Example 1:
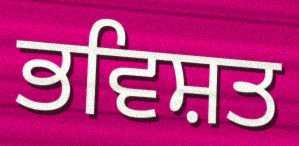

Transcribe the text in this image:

ਭਵਿਸ਼ਤ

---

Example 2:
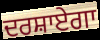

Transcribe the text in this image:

ਦਰਸ਼ਾਏਗਾ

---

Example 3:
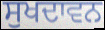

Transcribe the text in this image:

ਸੁਖਦਾਵਨ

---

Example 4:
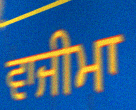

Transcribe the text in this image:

ਵਾਜੀਮਾ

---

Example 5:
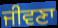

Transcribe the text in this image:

ਜੀਵਣਾ